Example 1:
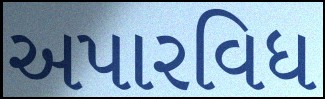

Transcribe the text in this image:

અપારવિધ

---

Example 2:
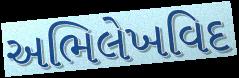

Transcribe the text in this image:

અભિલેખવિદ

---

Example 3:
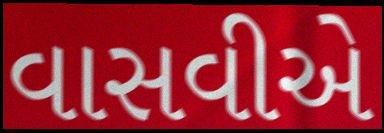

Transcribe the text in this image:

વાસવીએ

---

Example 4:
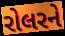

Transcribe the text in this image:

રોલરને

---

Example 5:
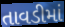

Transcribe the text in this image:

તાવડીમાં